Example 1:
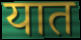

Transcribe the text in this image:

यात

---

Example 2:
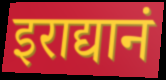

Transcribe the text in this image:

इराद्यानं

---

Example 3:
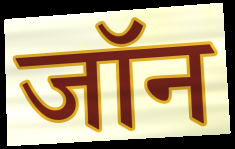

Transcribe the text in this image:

जॉन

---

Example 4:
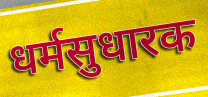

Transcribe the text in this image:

धर्मसुधारक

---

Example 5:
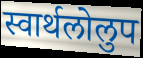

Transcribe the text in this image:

स्वार्थलोलुप